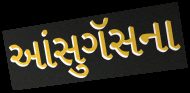
આંસુગૅસના